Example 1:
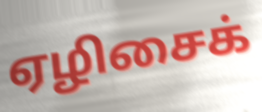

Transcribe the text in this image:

ஏழிசைக்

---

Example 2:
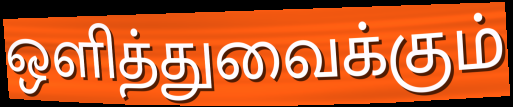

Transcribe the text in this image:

ஒளித்துவைக்கும்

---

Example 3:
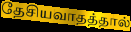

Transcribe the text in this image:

தேசியவாதத்தால்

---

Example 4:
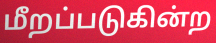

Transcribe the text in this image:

மீறப்படுகின்ற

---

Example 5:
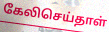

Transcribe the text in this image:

கேலிசெய்தாள்